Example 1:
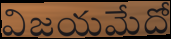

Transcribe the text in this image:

విజయమేదో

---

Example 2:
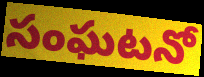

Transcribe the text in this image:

సంఘటనో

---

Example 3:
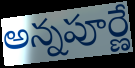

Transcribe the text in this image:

అన్నపూర్ణే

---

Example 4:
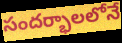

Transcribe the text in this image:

సందర్భాలలోనే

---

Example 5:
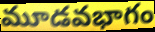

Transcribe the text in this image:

మూడవభాగం